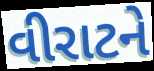
વીરાટને